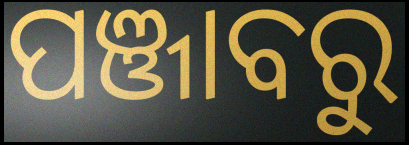
ପଞ୍ଜାବରୁ